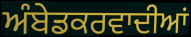
ਅੰਬੇਡਕਰਵਾਦੀਆਂ